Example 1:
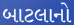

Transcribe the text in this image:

બાટલાનો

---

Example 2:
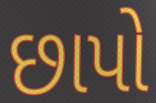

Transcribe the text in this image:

છાપો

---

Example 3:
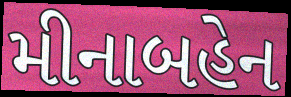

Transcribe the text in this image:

મીનાબહેન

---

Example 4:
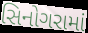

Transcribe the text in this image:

સિનોગરામાં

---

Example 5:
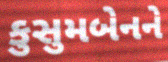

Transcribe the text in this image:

કુસુમબેનને